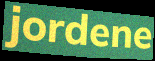
jordene